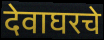
देवाघरचे